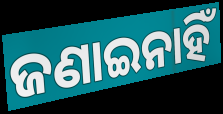
ଜଣାଇନାହିଁ